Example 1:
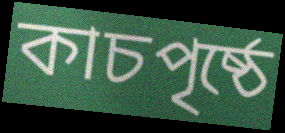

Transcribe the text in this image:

কাচপৃষ্ঠে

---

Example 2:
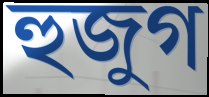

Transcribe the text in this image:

হুজুগ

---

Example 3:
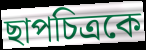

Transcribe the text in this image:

ছাপচিত্রকে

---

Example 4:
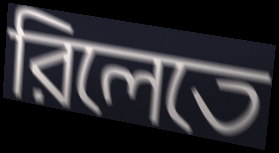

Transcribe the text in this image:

রিলেতে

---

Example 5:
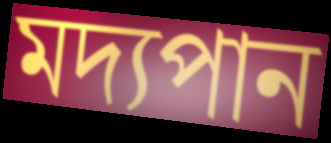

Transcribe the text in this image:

মদ্যপান